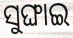
ସୁଙ୍ଘାଇ